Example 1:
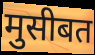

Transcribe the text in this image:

मुसीबत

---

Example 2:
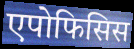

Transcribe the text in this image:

एपोफिसिस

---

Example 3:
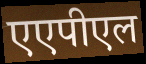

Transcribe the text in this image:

एएपीएल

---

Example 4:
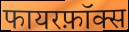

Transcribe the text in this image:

फायरफ़ॉक्स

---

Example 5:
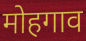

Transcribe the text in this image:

मोहगाव